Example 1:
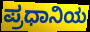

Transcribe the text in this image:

ಪ್ರಧಾನಿಯ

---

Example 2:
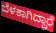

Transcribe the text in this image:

ಬೆಳಕಾಗಿದ್ದಾರೆ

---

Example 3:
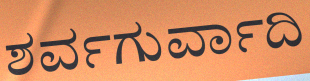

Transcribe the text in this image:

ಶರ್ವಗುರ್ವಾದಿ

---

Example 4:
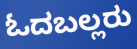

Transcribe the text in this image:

ಓದಬಲ್ಲರು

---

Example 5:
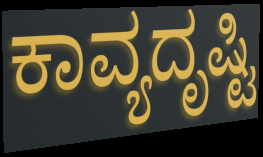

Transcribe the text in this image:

ಕಾವ್ಯದೃಷ್ಟಿ